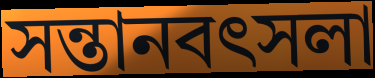
সন্তানবৎসলা